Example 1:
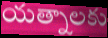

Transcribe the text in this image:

యత్నాలకు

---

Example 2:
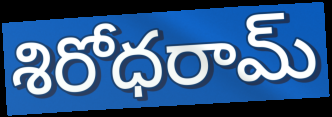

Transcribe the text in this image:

శిరోధరామ్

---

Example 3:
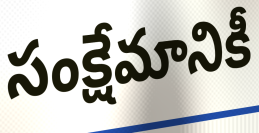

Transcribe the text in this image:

సంక్షేమానికీ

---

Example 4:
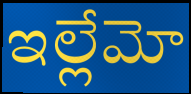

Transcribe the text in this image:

ఇల్లేమో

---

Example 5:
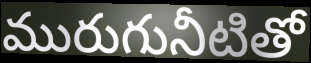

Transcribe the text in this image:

మురుగునీటితో